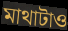
মাথাটাও